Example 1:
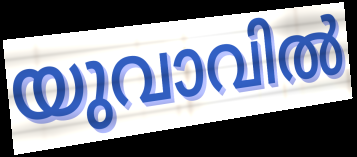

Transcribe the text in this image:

യുവാവിൽ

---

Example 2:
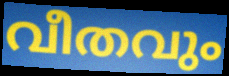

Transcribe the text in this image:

വീതവും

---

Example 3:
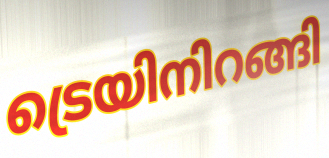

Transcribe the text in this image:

ട്രെയിനിറങ്ങി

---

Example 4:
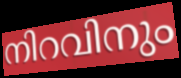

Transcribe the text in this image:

നിറവിനും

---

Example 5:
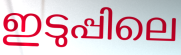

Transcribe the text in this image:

ഇടുപ്പിലെ